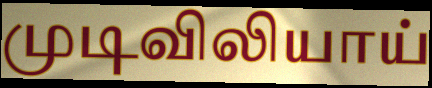
முடிவிலியாய்